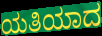
ಯತಿಯಾದ